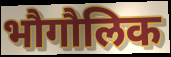
भौगौलिक